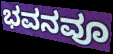
ಭವನವೂ